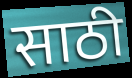
साठी